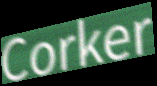
Corker